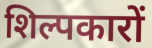
शिल्पकारों